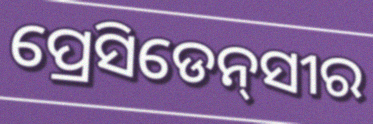
ପ୍ରେସିଡେନ୍‌ସୀର